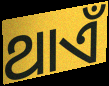
ଥାଏଁ